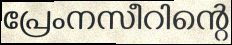
പ്രേംനസീറിന്റെ